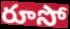
రూసో